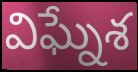
విఘ్నేశ